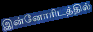
இன்னோரிடத்தில்